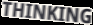
THINKING